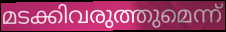
മടക്കിവരുത്തുമെന്ന്